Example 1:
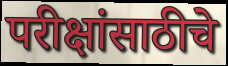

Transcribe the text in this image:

परीक्षांसाठीचे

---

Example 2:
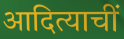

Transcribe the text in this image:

आदित्याचीं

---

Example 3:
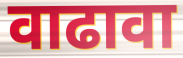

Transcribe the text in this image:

वाढावा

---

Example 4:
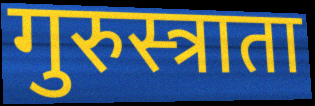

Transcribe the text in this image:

गुरुस्त्राता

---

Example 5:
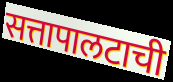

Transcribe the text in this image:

सत्तापालटाची